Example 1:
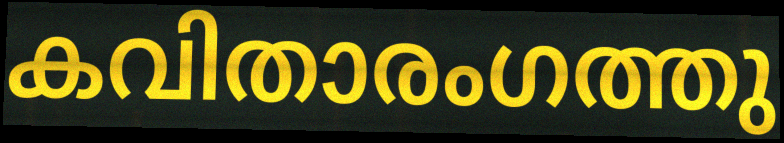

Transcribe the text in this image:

കവിതാരംഗത്തു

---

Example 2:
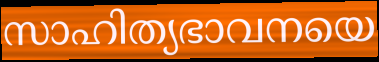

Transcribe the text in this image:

സാഹിത്യഭാവനയെ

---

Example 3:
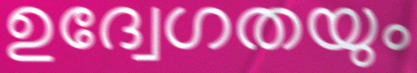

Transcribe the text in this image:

ഉദ്വേഗതയും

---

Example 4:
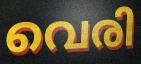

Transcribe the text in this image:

വെരി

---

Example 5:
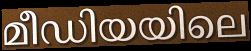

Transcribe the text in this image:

മീഡിയയിലെ